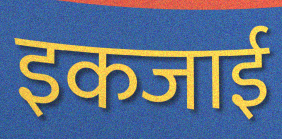
इकजाई